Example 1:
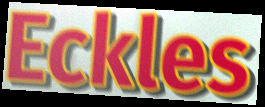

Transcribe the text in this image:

Eckles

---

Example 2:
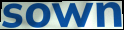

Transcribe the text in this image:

sown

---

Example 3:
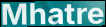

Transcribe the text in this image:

Mhatre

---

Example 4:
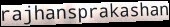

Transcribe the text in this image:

rajhansprakashan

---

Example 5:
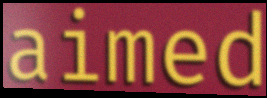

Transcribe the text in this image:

aimed